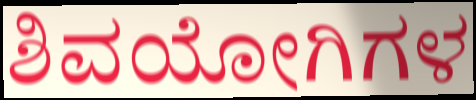
ಶಿವಯೋಗಿಗಳ